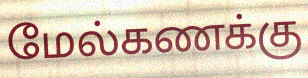
மேல்கணக்கு